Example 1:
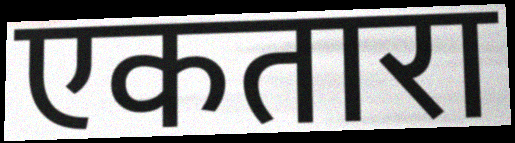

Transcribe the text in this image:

एकतारा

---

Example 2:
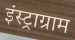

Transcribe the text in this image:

इंस्ट्राग्राम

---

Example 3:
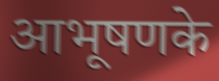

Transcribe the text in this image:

आभूषणके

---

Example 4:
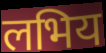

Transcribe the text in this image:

लभिय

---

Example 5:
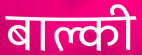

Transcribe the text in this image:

बाल्की